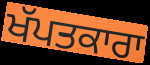
ਖੱਪਤਕਾਰਾ